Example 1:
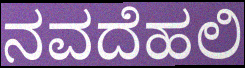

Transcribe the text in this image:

ನವದೆಹಲಿ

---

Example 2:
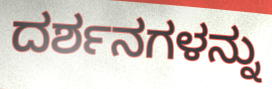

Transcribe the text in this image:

ದರ್ಶನಗಳನ್ನು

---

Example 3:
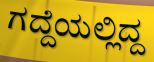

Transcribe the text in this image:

ಗದ್ದೆಯಲ್ಲಿದ್ದ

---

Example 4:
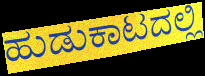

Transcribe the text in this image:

ಹುಡುಕಾಟದಲ್ಲಿ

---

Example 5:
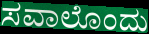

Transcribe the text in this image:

ಸವಾಲೊಂದು